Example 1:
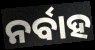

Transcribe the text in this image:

ନର୍ବାହ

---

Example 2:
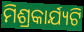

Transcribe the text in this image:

ମିଶ୍ରକାର୍ଯ୍ୟଟି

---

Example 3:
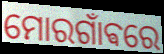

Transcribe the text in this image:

ମୋରଗାଁଵରେ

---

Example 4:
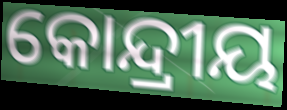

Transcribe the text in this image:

କୋନ୍ଦ୍ରୀୟ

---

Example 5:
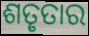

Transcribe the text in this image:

ଶତୃତାର